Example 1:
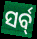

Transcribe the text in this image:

ସର୍ବ୍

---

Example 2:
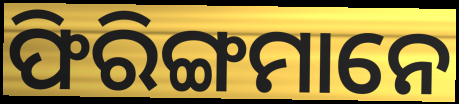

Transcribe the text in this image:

ଫିରିଙ୍ଗମାନେ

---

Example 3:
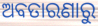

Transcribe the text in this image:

ଅବତାରଣାରୁ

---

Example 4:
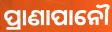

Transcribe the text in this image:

ପ୍ରାଣାପାନୌ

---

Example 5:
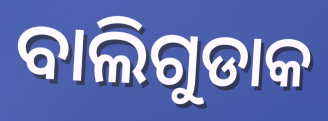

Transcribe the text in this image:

ବାଲିଗୁଡାକ